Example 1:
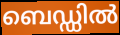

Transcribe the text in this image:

ബെഡ്ഡിൽ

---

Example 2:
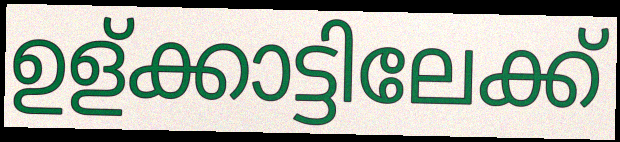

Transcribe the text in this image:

ഉള്ക്കാട്ടിലേക്ക്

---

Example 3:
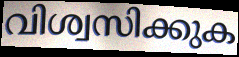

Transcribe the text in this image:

വിശ്വസിക്കുക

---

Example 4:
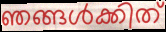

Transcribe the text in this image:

ഞങ്ങൾക്കിത്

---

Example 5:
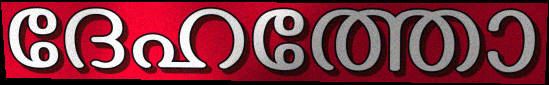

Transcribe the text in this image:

ദേഹത്തോ